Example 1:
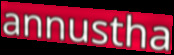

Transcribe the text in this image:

annustha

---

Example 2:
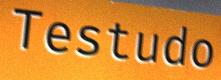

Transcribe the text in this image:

Testudo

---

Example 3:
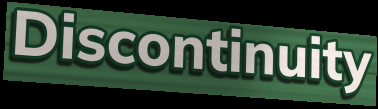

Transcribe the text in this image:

Discontinuity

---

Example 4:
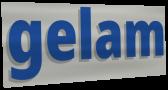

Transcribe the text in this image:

gelam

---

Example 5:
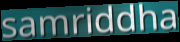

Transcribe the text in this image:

samriddha